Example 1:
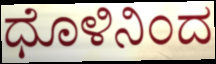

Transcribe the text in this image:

ಧೊಳಿನಿಂದ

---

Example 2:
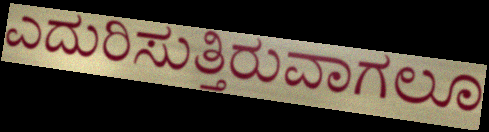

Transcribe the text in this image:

ಎದುರಿಸುತ್ತಿರುವಾಗಲೂ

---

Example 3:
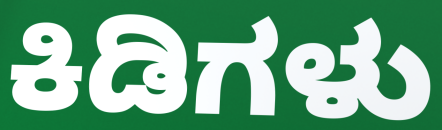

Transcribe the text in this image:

ಕಿಡಿಗಳು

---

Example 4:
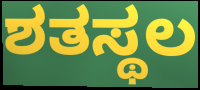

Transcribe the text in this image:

ಶತಸ್ಥಲ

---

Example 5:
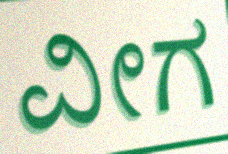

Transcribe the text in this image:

ವೀಗ